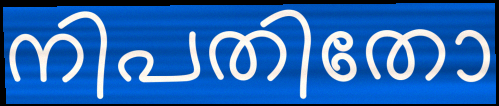
നിപതിതോ